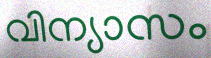
വിന്യാസം